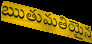
ఋతుమతియైన